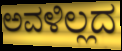
ಅವಳಿಲ್ಲದ